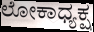
ಲೋಕಾಧ್ಯಕ್ಷ